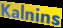
Kalnins